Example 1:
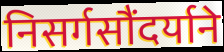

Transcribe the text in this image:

निसर्गसौंदर्याने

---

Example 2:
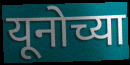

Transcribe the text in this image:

यूनोच्या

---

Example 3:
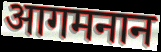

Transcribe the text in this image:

आगमनान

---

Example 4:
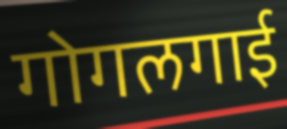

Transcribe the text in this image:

गोगलगाई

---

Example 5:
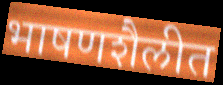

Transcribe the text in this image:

भाषणशैलीत